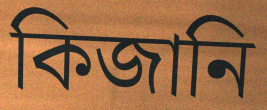
কিজানি